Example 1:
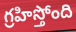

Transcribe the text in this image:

గ్రహిస్తోంది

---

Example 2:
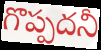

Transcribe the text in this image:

గొప్పదనీ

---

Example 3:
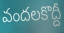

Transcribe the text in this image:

వందలకొద్దీ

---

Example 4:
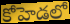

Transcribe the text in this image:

కోహెడలో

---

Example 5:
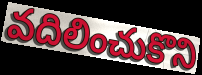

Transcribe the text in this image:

వదిలించుకొని